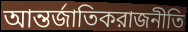
আন্তর্জাতিকরাজনীতি